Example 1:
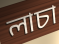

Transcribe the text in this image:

লাচা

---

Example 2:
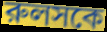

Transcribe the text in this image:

রুলসকে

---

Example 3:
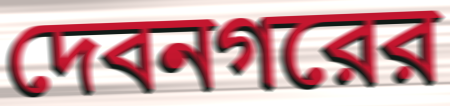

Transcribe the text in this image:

দেবনগরের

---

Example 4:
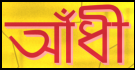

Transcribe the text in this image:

আঁধী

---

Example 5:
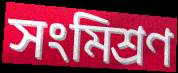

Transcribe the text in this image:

সংমিশ্রণ